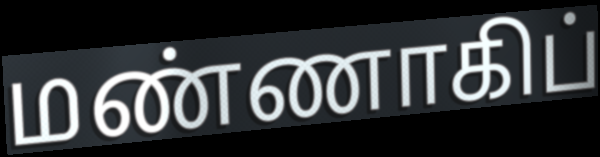
மண்ணாகிப்